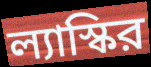
ল্যাস্কির